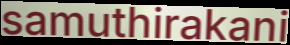
samuthirakani